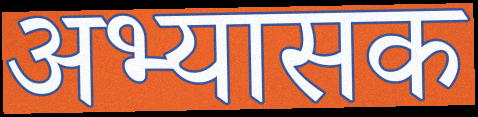
अभ्यासक